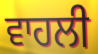
ਵਾਹਲੀ